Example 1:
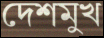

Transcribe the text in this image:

দেশমুখ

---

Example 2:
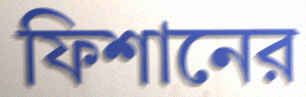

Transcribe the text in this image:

ফিশানের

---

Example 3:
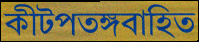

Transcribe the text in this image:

কীটপতঙ্গবাহিত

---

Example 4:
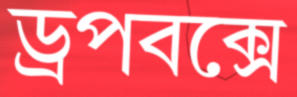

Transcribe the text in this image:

ড্রপবক্সে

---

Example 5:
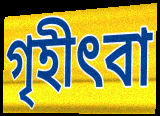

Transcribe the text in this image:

গৃহীৎবা